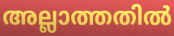
അല്ലാത്തതിൽ